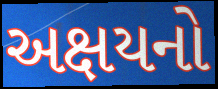
અક્ષયનો